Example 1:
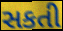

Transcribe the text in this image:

સકતી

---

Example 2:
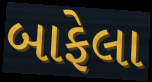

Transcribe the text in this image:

બાફેલા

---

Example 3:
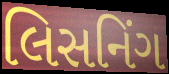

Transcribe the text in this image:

લિસનિંગ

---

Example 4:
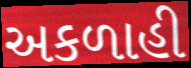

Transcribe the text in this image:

અકળાહી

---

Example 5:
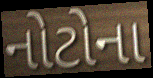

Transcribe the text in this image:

નોટોના